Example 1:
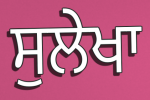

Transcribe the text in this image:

ਸੁਲੇਖਾ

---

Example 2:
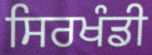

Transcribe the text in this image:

ਸਿਰਖੰਡੀ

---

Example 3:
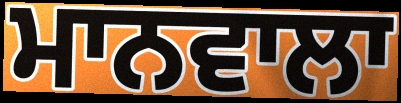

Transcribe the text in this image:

ਮਾਨਵਾਲਾ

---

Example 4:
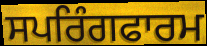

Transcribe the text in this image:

ਸਪਰਿੰਗਫਾਰਮ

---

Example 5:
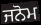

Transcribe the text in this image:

ਜਨੋਮ